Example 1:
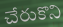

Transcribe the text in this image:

చేరుకొని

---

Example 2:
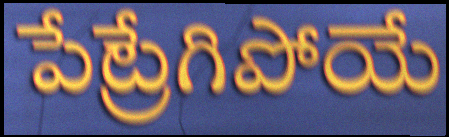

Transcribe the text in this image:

పేట్రేగిపోయే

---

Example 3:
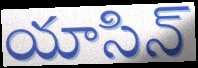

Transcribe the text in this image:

యాసిన్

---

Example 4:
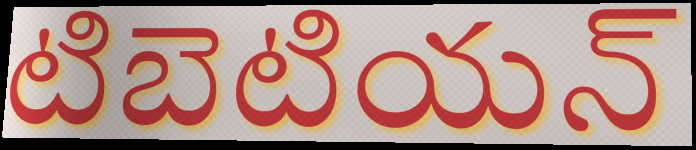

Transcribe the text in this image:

టిబెటియన్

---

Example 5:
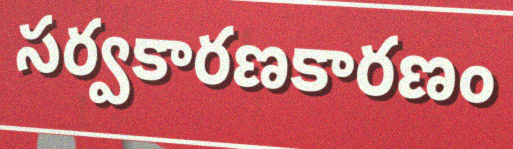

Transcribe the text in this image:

సర్వకారణకారణం